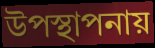
উপস্থাপনায়